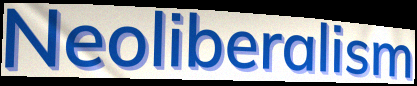
Neoliberalism